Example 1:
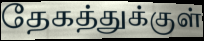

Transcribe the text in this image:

தேகத்துக்குள்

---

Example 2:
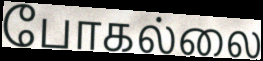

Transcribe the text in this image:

போகல்லை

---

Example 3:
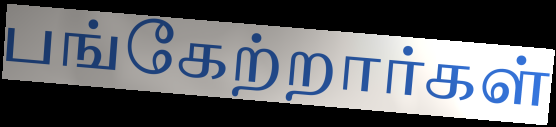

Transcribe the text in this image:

பங்கேற்றார்கள்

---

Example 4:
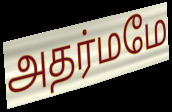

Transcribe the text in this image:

அதர்மமே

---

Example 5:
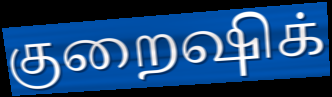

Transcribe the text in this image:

குறைஷிக்